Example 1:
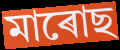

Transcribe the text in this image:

মাৰোছ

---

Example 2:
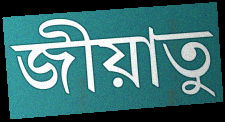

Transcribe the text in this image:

জীয়াতু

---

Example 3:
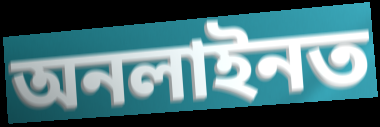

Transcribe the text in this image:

অনলাইনত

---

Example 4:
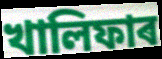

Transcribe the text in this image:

খালিফাৰ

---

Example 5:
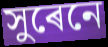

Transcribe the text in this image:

সুৰেনে